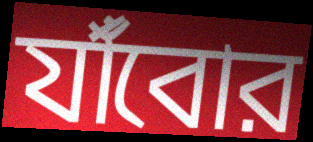
র্যাঁবোর